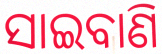
ସାଇବାଣି